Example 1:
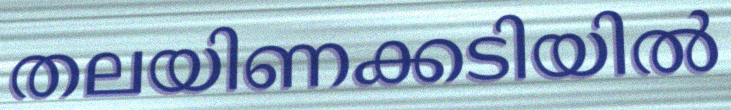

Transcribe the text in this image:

തലയിണക്കടിയിൽ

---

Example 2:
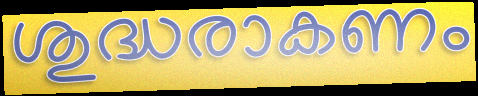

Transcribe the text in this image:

ശുദ്ധരാകണം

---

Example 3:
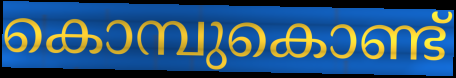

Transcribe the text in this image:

കൊമ്പുകൊണ്ട്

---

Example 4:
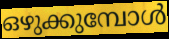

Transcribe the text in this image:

ഒഴുക്കുമ്പോൾ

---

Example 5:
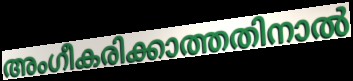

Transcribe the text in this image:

അംഗീകരിക്കാത്തതിനാൽ